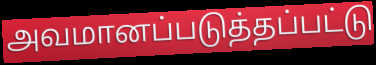
அவமானப்படுத்தப்பட்டு